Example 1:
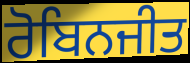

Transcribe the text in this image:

ਰੋਬਿਨਜੀਤ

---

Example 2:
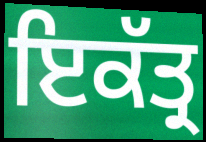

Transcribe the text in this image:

ਇਕੱਤ੍ਰ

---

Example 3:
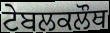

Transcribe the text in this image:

ਟੇਬਲਕਲੌਥ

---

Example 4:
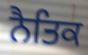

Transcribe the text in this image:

ਨੈਤਿਕ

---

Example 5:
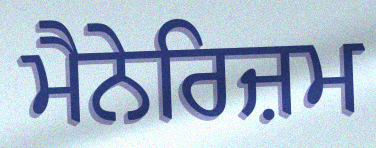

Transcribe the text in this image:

ਮੈਨੇਰਿਜ਼ਮ